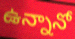
ఉన్నానో